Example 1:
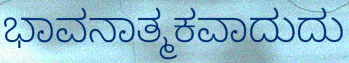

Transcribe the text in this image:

ಭಾವನಾತ್ಮಕವಾದುದು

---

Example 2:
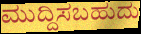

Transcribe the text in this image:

ಮುದ್ದಿಸಬಹುದು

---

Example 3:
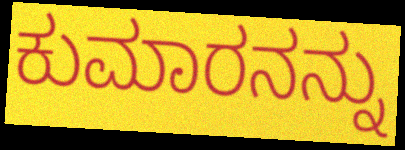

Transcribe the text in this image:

ಕುಮಾರನನ್ನು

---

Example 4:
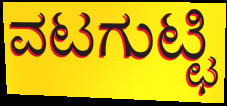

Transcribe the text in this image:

ವಟಗುಟ್ಟಿ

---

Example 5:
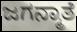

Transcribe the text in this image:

ಜಗನ್ಮಾತೆ